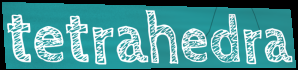
tetrahedra